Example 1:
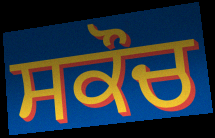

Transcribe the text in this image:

ਸਕੌਚ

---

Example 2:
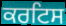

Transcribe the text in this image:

ਕਰਟਿਸ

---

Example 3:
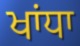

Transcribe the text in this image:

ਖਾਂਧਾ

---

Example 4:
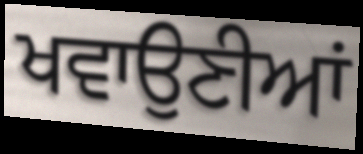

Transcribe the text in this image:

ਖਵਾਉਣੀਆਂ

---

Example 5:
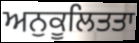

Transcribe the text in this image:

ਅਨੁਕੂਲਿਤਤਾ